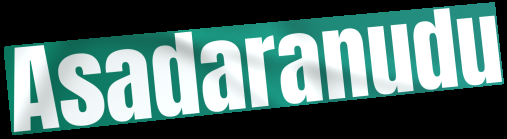
Asadaranudu